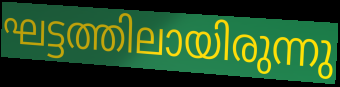
ഘട്ടത്തിലായിരുന്നു